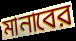
মানাবের